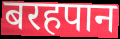
बरहपान